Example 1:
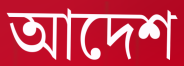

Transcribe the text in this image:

আদেশ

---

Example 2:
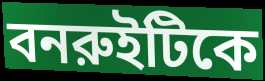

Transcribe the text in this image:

বনরুইটিকে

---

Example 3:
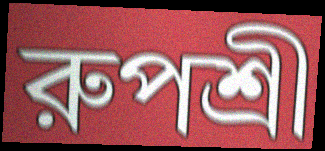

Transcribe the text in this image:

রুপশ্রী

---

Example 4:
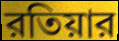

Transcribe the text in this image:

রতিয়ার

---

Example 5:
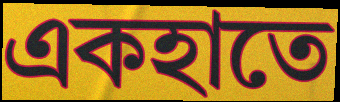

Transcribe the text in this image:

একহাতে